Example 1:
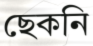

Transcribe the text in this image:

ছেকনি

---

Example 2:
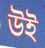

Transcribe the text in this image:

উই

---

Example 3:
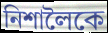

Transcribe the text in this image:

নিশালৈকে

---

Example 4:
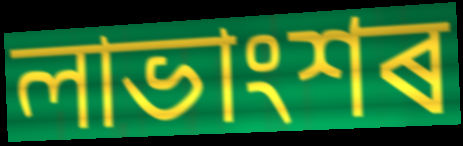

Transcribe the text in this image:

লাভাংশৰ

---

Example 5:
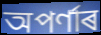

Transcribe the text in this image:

অপৰ্ণাৰ